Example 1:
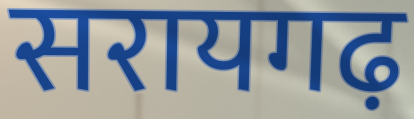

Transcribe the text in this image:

सरायगढ़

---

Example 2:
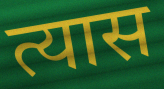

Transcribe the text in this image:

त्यास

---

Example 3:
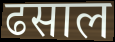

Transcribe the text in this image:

ढसाल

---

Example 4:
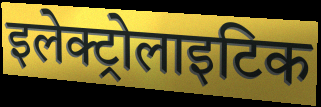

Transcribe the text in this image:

इलेक्ट्रोलाइटिक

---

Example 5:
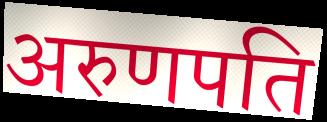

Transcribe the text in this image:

अरुणपति